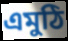
এমুঠি